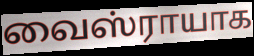
வைஸ்ராயாக